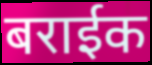
बराईक